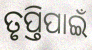
ତୃପ୍ତିପାଇଁ